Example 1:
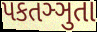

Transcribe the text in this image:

પકતઞ્ઞુતા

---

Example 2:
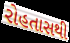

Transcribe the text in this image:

રોહતાસથી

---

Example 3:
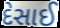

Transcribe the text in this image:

દેસાઈ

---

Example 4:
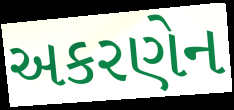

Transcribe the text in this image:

અકરણેન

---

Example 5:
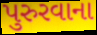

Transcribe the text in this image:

પુરુરવાના